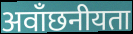
अवाँछनीयता